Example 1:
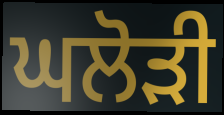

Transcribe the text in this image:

ਘਲੋਡ਼ੀ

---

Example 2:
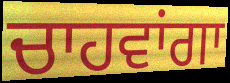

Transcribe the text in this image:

ਚਾਹਵਾਂਗਾ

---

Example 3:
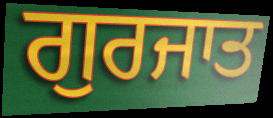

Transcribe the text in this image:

ਗੁਰਜਾਤ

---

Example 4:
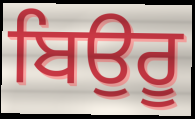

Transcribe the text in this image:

ਬਿਉਰੂ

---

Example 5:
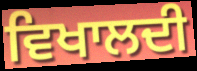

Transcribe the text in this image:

ਵਿਖਾਲਦੀ